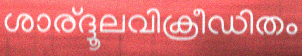
ശാര്ദ്ദൂലവിക്രീഡിതം